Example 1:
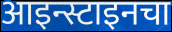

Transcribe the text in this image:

आइन्स्टाइनचा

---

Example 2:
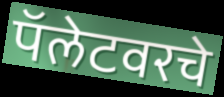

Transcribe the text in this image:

पॅलेटवरचे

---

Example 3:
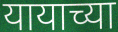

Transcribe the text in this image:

यायाच्या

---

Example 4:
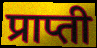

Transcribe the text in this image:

प्राप्ती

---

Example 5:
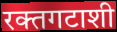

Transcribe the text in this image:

रक्तगटाशी